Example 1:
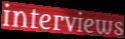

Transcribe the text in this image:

interviews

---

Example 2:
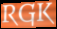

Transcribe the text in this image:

RGK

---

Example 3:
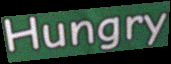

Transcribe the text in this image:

Hungry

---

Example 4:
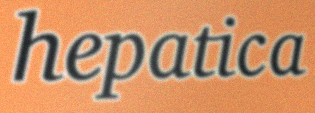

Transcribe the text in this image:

hepatica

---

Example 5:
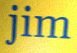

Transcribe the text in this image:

jim